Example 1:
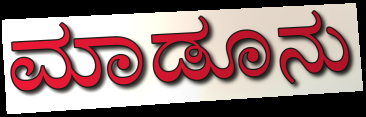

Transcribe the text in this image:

ಮಾಡೂನು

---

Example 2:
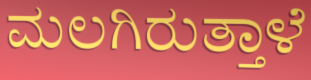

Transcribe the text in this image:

ಮಲಗಿರುತ್ತಾಳೆ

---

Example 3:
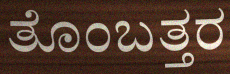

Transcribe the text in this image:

ತೊಂಬತ್ತರ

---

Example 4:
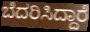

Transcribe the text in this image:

ಬೆದರಿಸಿದ್ದಾರೆ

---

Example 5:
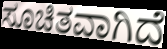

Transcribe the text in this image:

ಸೂಚಿತವಾಗಿದೆ